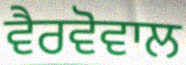
ਵੈਰਵੋਵਾਲ